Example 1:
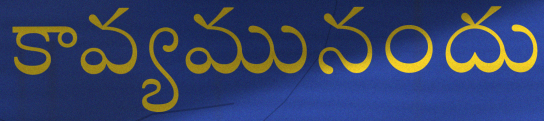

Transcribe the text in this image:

కావ్యమునందు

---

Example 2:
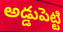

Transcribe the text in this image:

అడ్డుపెట్టి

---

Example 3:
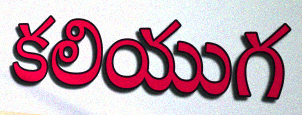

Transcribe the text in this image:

కలియుగ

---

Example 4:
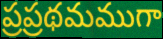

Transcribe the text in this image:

ప్రప్రథమముగా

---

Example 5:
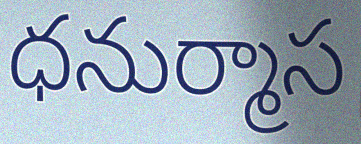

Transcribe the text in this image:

ధనుర్మాస